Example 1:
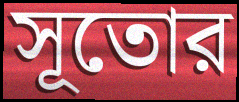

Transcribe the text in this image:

সূতোর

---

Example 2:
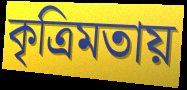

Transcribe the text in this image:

কৃত্রিমতায়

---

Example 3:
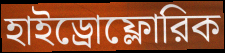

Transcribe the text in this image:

হাইড্রোফ্লোরিক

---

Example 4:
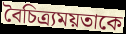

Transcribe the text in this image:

বৈচিত্র্যময়তাকে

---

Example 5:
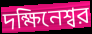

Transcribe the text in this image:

দক্ষিনেশ্বর